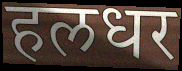
हलधर